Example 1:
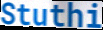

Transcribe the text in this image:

Stuthi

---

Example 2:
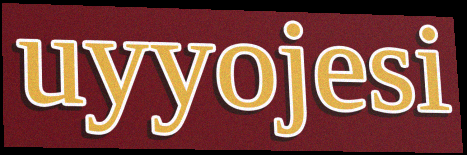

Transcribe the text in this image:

uyyojesi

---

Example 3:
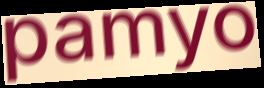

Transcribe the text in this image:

pamyo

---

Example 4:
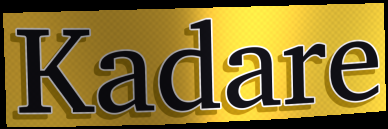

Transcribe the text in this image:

Kadare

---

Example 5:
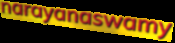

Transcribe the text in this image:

narayanaswamy